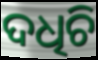
ଦଧିଚି